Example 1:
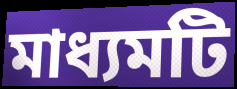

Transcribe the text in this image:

মাধ্যমটি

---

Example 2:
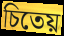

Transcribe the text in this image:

চিতেয়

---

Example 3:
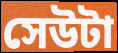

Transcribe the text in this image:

সেউটা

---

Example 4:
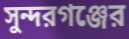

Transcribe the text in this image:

সুন্দরগঞ্জের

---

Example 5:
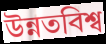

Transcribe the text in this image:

উন্নতবিশ্ব